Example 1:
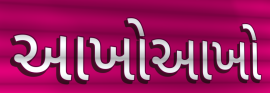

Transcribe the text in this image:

આખોઆખો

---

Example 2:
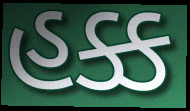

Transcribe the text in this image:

હક્ક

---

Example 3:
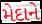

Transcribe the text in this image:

મેદાને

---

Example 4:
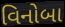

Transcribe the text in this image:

વિનોબા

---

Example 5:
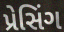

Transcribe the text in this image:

પ્રેસિંગ